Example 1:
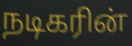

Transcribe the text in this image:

நடிகரின்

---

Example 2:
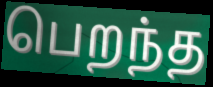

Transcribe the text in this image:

பெறந்த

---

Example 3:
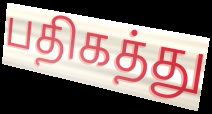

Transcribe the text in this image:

பதிகத்து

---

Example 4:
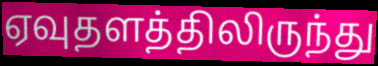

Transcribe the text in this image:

ஏவுதளத்திலிருந்து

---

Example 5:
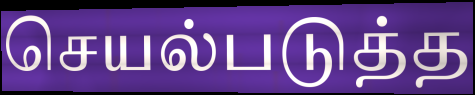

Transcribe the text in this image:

செயல்படுத்த